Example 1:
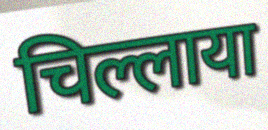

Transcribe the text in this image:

चिल्लाया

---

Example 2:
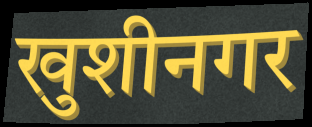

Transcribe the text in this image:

खुशीनगर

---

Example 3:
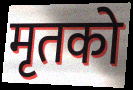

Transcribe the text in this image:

मृतको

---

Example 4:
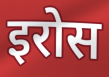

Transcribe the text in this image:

इरोस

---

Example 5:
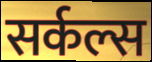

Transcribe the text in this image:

सर्कल्‍स